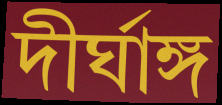
দীর্ঘাঙ্গ